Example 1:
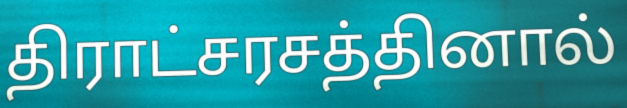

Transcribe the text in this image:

திராட்சரசத்தினால்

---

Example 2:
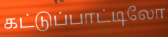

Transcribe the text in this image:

கட்டுப்பாட்டிலோ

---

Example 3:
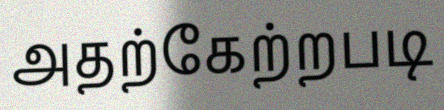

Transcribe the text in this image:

அதற்கேற்றபடி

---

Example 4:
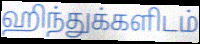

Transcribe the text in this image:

ஹிந்துக்களிடம்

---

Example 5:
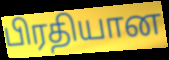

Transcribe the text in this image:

பிரதியான